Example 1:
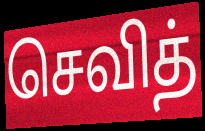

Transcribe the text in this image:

செவித்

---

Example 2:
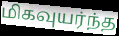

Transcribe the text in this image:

மிகவுயர்ந்த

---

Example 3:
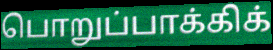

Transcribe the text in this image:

பொறுப்பாக்கிக்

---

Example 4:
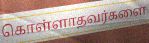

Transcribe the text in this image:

கொள்ளாதவர்களை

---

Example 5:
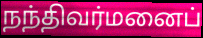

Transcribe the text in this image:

நந்திவர்மனைப்